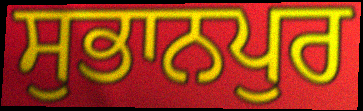
ਸੁਭਾਨਪੁਰ